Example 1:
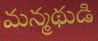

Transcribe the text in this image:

మన్మథుడి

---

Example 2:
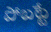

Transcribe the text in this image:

పోబట్టే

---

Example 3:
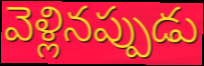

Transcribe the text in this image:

వెళ్లినప్పుడు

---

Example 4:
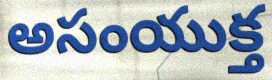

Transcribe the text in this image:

అసంయుక్త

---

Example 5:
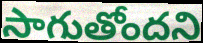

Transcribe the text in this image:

సాగుతోందని